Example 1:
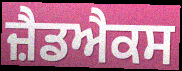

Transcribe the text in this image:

ਜ਼ੈਡਐਕਸ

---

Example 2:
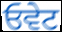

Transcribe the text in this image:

ਓਵੇਟ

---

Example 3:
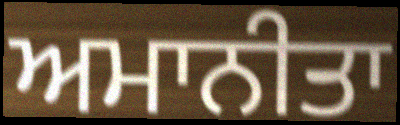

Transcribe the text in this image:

ਅਮਾਨੀਤਾ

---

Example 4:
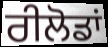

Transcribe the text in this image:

ਰੀਲੋਡਾਂ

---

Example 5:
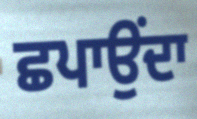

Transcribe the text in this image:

ਛਪਾਉਂਦਾ